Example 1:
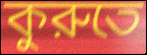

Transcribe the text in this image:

কুরুতে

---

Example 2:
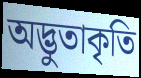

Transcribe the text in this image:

অদ্ভুতাকৃতি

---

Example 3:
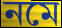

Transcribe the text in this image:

নমে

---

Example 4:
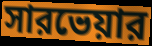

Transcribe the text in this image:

সারভেয়ার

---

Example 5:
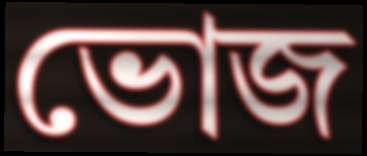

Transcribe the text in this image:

ভোজ